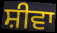
ਸ਼ੀਵਾ